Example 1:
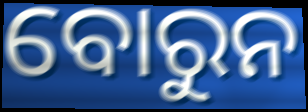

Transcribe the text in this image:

ବୋରୁନ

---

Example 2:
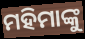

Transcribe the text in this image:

ମହିମାଙ୍କୁ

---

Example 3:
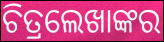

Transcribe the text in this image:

ଚିତ୍ରଲେଖାଙ୍କର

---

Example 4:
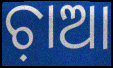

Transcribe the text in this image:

ଚ଼ାଆ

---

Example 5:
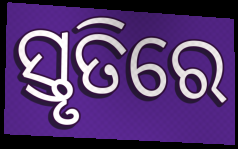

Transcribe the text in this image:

ସ୍ତୃତିରେ